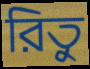
রিতু